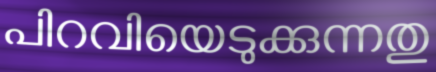
പിറവിയെടുക്കുന്നതു